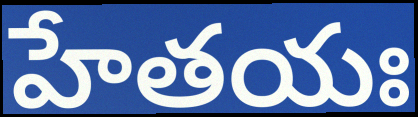
హేతయః